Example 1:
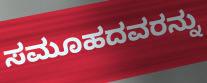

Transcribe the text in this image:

ಸಮೂಹದವರನ್ನು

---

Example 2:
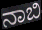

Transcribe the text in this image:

ನಾಬಿ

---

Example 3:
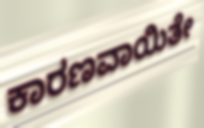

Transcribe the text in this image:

ಕಾರಣವಾಯಿತೇ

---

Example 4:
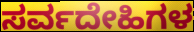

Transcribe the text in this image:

ಸರ್ವದೇಹಿಗಳ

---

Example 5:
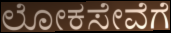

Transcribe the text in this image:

ಲೋಕಸೇವೆಗೆ